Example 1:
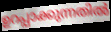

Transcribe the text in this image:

ഉറപ്പാക്കുന്നതിൽ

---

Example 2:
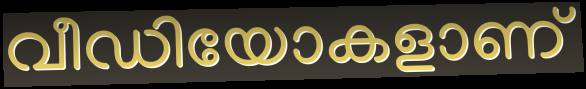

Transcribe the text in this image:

വീഡിയോകളാണ്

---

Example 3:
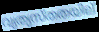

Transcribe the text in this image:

വ്യത്യസ്തതയില്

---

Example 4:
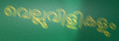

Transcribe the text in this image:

വെല്ലുവിളികളും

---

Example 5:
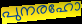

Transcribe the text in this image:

പുനരഹോ